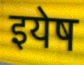
इयेष